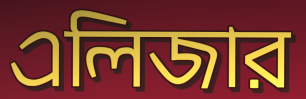
এলিজার